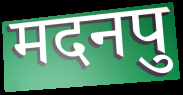
मदनपु